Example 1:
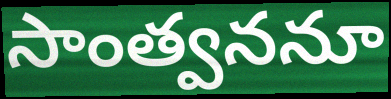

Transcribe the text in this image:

సాంత్వననూ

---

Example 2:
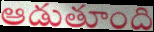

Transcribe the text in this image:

ఆడుతూంది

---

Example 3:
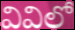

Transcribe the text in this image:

వివిలో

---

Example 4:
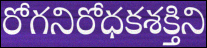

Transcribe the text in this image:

రోగనిరోధకశక్తిని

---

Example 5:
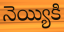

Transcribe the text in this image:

నెయ్యికి